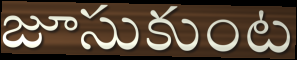
జూసుకుంట